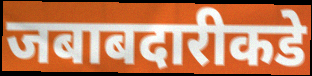
जबाबदारीकडे